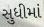
સુધીમાં